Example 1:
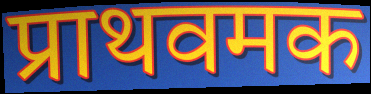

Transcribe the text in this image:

प्राथवमक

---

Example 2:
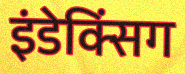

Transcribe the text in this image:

इंडेक्सिंग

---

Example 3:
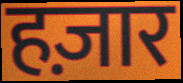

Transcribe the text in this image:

हज़ार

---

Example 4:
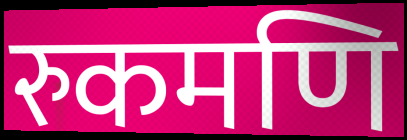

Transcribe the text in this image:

रुकमणि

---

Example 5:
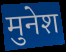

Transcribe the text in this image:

मुनेश